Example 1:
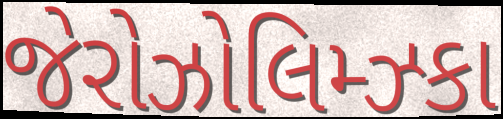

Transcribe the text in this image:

જેરોઝોલિમ્ઝ્કા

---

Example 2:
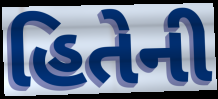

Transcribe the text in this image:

હિતેની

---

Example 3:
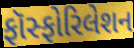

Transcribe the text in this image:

ફૉસ્ફોરિલેશન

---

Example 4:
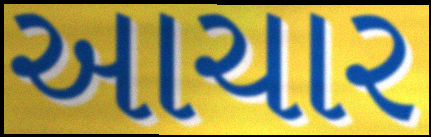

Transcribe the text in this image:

આચાર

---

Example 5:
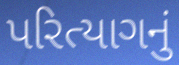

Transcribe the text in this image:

પરિત્યાગનું